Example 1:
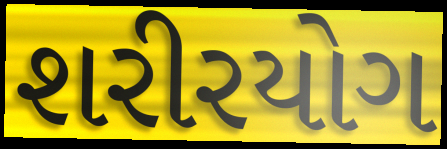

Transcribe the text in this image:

શરીરયોગ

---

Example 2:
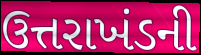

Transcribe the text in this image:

ઉત્તરાખંડની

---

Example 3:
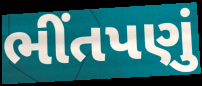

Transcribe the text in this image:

ભીંતપણું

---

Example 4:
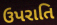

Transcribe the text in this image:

ઉપરાતિ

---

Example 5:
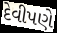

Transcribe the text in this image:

દેવીપણે